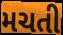
મચતી